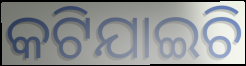
କଟିଯାଇଚି